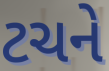
ટચને